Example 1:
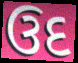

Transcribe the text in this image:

ઉદ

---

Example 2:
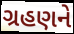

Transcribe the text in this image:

ગ્રહણને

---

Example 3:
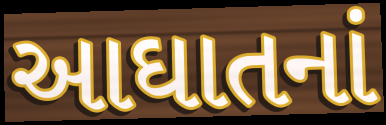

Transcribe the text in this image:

આઘાતનાં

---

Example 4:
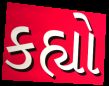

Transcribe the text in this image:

કહ્યો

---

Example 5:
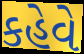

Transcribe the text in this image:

કહેવે